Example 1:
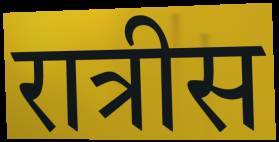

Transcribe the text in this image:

रात्रीस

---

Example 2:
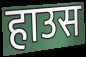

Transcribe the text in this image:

हाउस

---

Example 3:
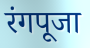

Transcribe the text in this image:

रंगपूजा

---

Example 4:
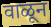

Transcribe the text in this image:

वाळून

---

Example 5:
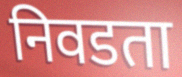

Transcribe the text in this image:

निवडता